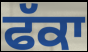
ਫੱਕਾ